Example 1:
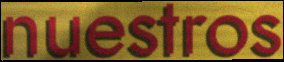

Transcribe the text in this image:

nuestros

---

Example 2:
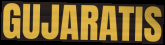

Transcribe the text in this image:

GUJARATIS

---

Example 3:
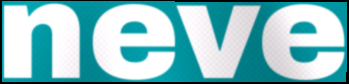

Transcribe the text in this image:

neve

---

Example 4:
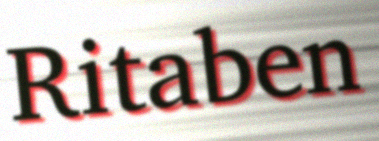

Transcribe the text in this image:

Ritaben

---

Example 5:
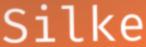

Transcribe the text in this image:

Silke